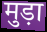
मुड़ा